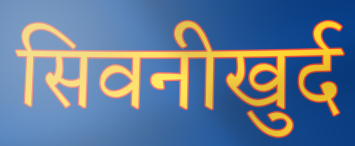
सिवनीखुर्द